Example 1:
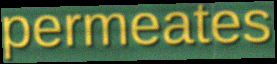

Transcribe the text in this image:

permeates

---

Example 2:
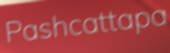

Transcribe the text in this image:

Pashcattapa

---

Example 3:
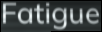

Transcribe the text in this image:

Fatigue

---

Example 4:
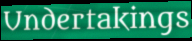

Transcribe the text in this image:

Undertakings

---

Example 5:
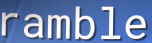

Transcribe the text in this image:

ramble